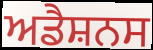
ਅਡੈਸ਼ਨਸ